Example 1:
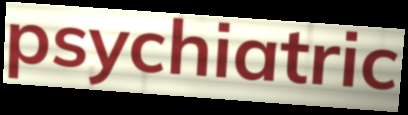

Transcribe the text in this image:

psychiatric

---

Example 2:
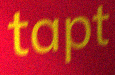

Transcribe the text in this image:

tapt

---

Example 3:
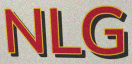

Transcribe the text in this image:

NLG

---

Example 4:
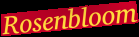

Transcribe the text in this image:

Rosenbloom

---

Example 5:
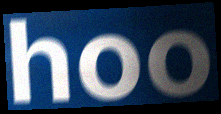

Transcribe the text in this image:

hoo